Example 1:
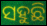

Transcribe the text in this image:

ସହୁଛି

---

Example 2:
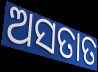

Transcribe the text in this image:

ଅସତାତ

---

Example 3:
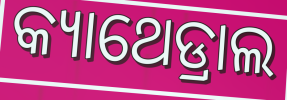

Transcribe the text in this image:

କ୍ୟାଥେଡ୍ରାଲ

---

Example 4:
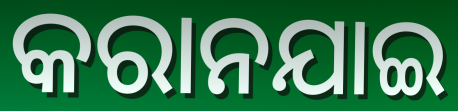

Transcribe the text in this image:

କରାନଯାଇ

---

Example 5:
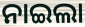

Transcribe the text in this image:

ନାଇଲା